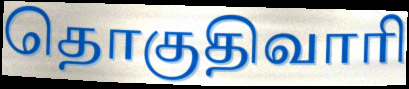
தொகுதிவாரி